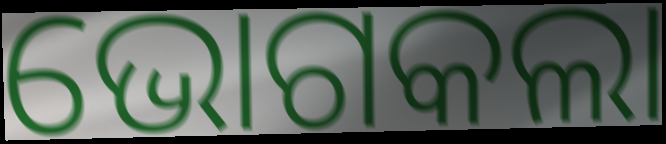
ଭୋଗକଲା